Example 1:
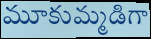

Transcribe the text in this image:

మూకుమ్మడిగా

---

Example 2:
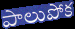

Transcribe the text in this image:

పాలుపోక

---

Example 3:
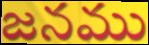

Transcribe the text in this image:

జనము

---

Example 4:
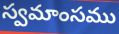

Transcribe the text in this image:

స్వమాంసము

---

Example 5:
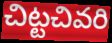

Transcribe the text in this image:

చిట్టచివరి